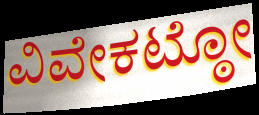
ವಿವೇಕಟ್ಠೋ